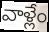
వాళ్లేం